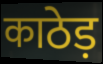
काठेड़